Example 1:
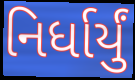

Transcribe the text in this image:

નિર્ધાર્યું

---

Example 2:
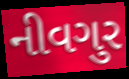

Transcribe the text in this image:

નીવગુર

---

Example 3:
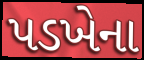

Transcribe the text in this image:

પડખેના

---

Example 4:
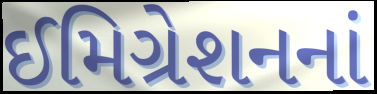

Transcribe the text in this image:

ઈમિગ્રેશનનાં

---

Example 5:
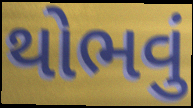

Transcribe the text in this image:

થોભવું